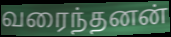
வரைந்தனன்